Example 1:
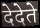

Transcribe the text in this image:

देदेते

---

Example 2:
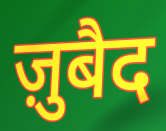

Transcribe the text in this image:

ज़ुबैद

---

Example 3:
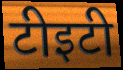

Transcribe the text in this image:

टीइटी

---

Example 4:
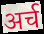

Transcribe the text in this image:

अर्च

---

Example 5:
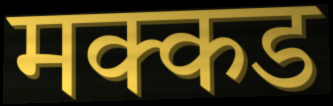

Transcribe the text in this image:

मक्कड